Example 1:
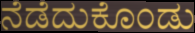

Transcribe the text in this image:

ನೆಡೆದುಕೊಂಡು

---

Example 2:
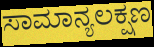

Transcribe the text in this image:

ಸಾಮಾನ್ಯಲಕ್ಷಣ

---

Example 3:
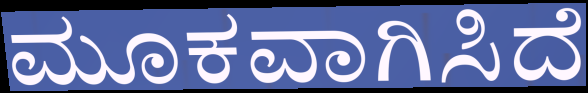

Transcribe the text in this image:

ಮೂಕವಾಗಿಸಿದೆ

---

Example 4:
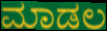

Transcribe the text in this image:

ಮಾಡಲ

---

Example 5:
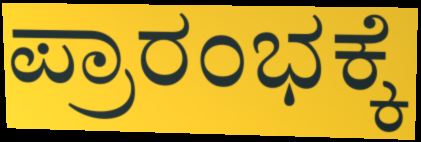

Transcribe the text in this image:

ಪ್ರಾರಂಭಕ್ಕೆ